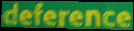
deference